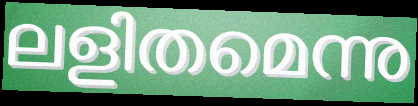
ലളിതമെന്നു